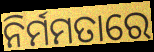
ନିର୍ମମତାରେ